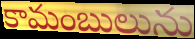
కామంబులును